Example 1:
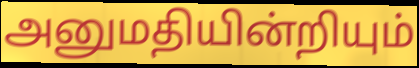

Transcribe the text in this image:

அனுமதியின்றியும்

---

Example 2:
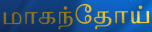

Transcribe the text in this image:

மாகந்தோய்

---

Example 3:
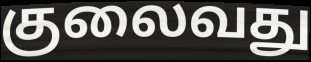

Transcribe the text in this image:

குலைவது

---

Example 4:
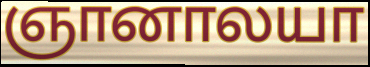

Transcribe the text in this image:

ஞானாலயா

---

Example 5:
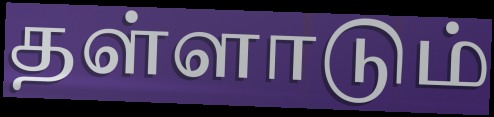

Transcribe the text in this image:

தள்ளாடும்